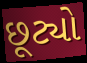
છૂટ્યો